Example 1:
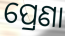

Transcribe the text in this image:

ପ୍ରେଣା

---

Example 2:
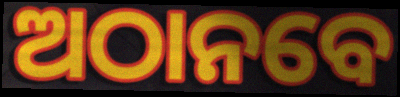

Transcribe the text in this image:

ଅଠାନବେ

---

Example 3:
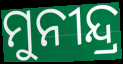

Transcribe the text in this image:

ମୁନୀନ୍ଦ୍ର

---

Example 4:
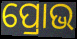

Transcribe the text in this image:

ପ୍ରୋଭ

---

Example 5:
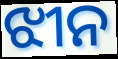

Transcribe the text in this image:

ଝୀନ